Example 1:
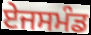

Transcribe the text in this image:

ਏਜਸਮੰਡ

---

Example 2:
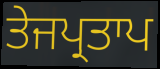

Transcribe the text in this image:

ਤੇਜਪ੍ਰਤਾਪ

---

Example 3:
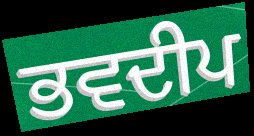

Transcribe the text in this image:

ਭਵਦੀਪ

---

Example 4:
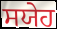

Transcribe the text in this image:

ਸਯੇਹ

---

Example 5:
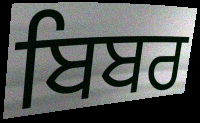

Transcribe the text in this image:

ਬਿਬਰ